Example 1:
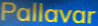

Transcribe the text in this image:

Pallavar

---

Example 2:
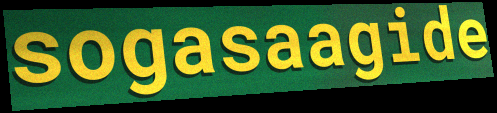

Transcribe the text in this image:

sogasaagide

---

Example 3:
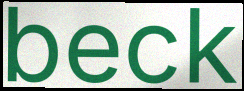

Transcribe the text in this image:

beck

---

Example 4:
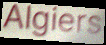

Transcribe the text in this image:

Algiers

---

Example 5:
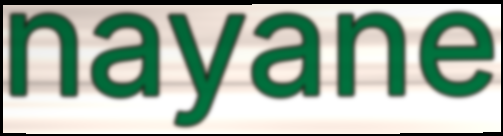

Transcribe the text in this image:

nayane